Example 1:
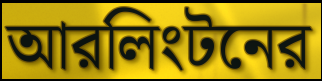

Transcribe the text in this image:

আরলিংটনের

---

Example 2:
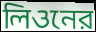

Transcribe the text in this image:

লিওনের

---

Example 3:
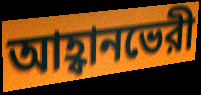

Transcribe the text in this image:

আহ্বানভেরী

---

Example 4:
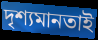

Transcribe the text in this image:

দৃশ্যমানতাই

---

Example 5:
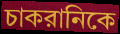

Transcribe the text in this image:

চাকরানিকে